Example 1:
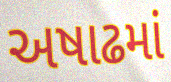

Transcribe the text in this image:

અષાઢમાં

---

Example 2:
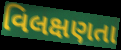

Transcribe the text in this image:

વિલક્ષણતા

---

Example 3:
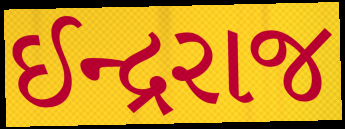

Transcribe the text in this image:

ઈન્દ્રરાજ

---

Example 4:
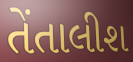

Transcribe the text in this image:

તેંતાલીશ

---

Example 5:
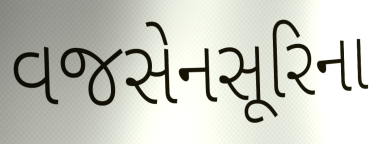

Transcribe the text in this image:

વજસેનસૂરિના